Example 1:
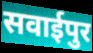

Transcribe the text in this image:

सवाईपुर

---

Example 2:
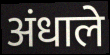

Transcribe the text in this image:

अंधाले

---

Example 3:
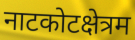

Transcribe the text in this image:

नाटकोटक्षेत्रम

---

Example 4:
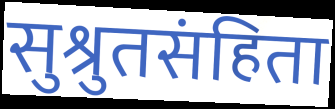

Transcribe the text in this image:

सुश्रुतसंहिता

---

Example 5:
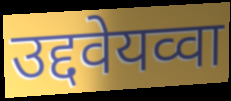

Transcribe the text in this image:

उद्दवेयव्वा